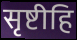
सृष्टीहि